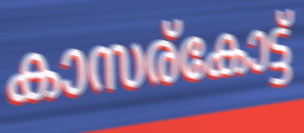
കാസര്കോട്ട്